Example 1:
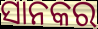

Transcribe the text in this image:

ସାନକର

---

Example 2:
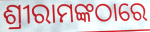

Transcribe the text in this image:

ଶ୍ରୀରାମଙ୍କଠାରେ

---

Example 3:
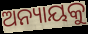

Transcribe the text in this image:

ଅନ୍ୟାୟକୁ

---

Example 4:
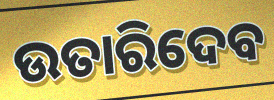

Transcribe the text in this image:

ଉତାରିଦେବ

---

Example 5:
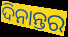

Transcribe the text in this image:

ଦିନାନ୍ତର